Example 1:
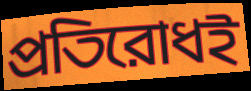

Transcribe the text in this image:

প্রতিরোধই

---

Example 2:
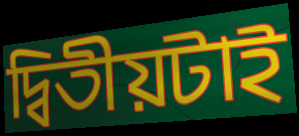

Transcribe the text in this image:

দ্বিতীয়টাই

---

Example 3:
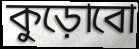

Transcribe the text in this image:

কুড়োবো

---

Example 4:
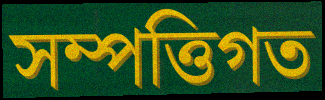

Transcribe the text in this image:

সম্পত্তিগত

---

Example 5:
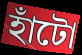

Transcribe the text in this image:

হাঁটো